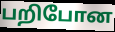
பறிபோன